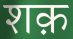
शक़